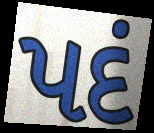
પદં